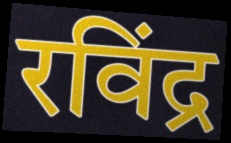
रविंद्र